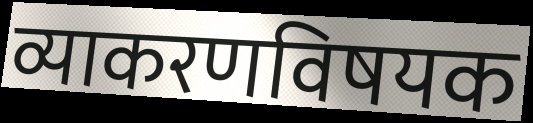
व्याकरणविषयक